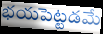
భయపెట్టడమే